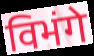
विभंगे